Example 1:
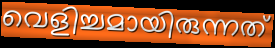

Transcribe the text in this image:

വെളിച്ചമായിരുന്നത്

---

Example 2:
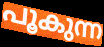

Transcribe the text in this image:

പൂകുന്ന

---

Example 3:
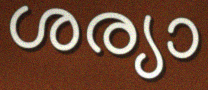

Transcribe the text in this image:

ശര്യാ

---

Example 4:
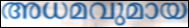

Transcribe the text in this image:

അധമവുമായ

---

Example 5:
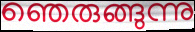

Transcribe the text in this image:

ഞെരുങ്ങുന്നു